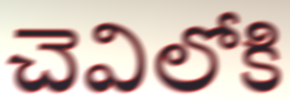
చెవిలోకి